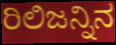
ರಿಲಿಜನ್ನಿನ